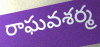
రాఘవశర్మ